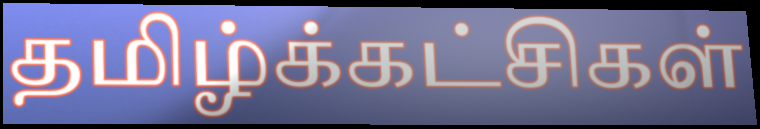
தமிழ்க்கட்சிகள்